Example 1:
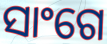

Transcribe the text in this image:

ସାଂଗେ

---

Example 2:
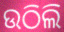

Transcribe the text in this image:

ଉଠିଲି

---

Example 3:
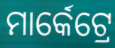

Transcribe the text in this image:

ମାର୍କେଟ୍ରେ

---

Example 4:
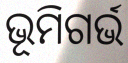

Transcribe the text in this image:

ଭୂମିଗର୍ଭ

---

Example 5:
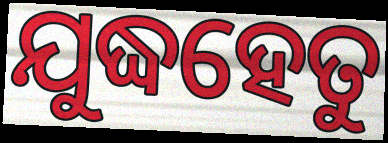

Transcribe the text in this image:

ଯୁଦ୍ଧହେତୁ